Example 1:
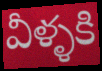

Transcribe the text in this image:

వీళ్ళకి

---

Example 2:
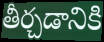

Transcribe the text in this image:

తీర్చడానికి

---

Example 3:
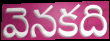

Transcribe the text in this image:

వెనకది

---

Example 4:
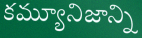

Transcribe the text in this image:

కమ్యూనిజాన్ని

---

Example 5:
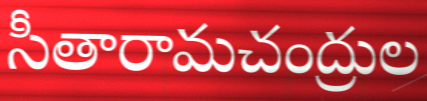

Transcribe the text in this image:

సీతారామచంద్రుల